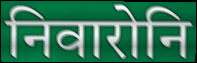
निवारोनि